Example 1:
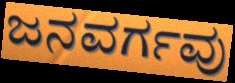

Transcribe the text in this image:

ಜನವರ್ಗವು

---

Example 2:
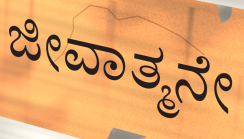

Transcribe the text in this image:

ಜೀವಾತ್ಮನೇ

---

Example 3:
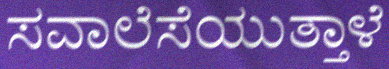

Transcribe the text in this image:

ಸವಾಲೆಸೆಯುತ್ತಾಳೆ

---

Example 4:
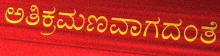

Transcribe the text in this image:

ಅತಿಕ್ರಮಣವಾಗದಂತೆ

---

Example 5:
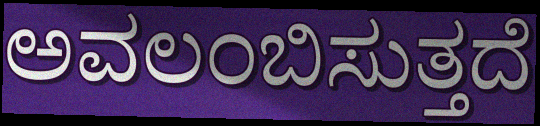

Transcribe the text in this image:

ಅವಲಂಬಿಸುತ್ತದೆ